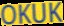
OKUK